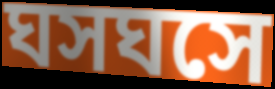
ঘসঘসে